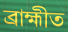
ব্ৰাহ্মীত